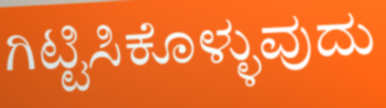
ಗಿಟ್ಟಿಸಿಕೊಳ್ಳುವುದು